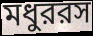
মধুররস